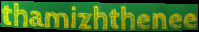
thamizhthenee